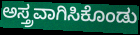
ಅಸ್ತ್ರವಾಗಿಸಿಕೊಂಡು